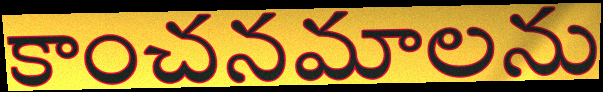
కాంచనమాలను